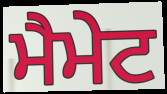
ਮੈਮੇਟ